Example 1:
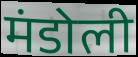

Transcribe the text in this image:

मंडोली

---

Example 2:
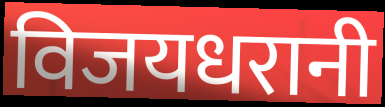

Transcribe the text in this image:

विजयधरानी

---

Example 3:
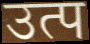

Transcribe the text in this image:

उत्प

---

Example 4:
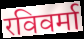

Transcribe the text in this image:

रविवर्मा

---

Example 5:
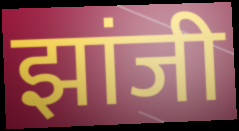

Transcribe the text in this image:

झांजी